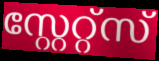
സ്റ്റേറ്റ്സ്